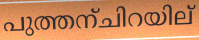
പുത്തന്ചിറയില്